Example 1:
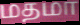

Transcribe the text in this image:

மதமா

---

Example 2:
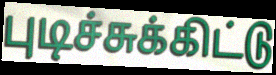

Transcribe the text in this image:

புடிச்சுக்கிட்டு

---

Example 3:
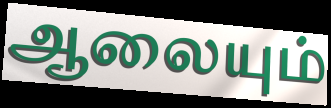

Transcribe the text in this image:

ஆலையும்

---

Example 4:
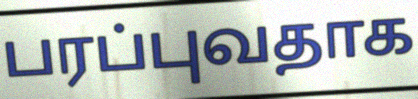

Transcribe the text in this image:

பரப்புவதாக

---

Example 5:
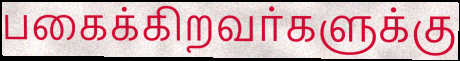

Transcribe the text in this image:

பகைக்கிறவர்களுக்கு